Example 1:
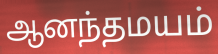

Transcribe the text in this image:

ஆனந்தமயம்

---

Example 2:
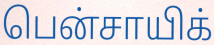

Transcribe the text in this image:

பென்சாயிக்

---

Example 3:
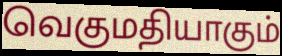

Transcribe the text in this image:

வெகுமதியாகும்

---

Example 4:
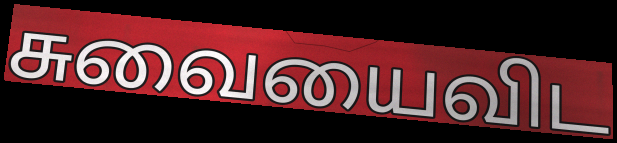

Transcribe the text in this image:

சுவையைவிட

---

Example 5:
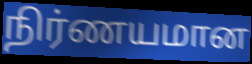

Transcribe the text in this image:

நிர்ணயமான